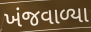
ખંજવાળ્યા